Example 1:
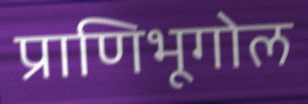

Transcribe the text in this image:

प्राणिभूगोल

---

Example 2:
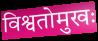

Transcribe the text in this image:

विश्वतोमुखः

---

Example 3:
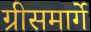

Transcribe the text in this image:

ग्रीसमार्गे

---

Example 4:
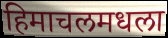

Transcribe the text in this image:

हिमाचलमधला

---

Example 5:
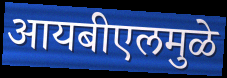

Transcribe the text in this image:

आयबीएलमुळे